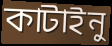
কাটাইনু